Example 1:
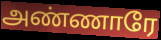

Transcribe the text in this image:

அண்ணாரே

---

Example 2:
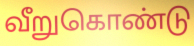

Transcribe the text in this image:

வீறுகொண்டு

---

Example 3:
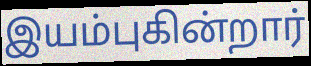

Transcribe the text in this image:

இயம்புகின்றார்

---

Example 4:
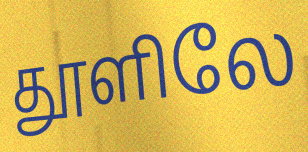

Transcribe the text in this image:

தூளிலே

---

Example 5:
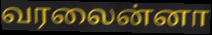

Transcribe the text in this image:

வரலைன்னா